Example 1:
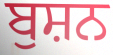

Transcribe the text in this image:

ਬੁਸ਼ਨ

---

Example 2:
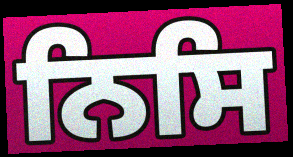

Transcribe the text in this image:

ਨਿਸਿ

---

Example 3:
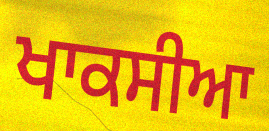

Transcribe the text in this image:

ਖਾਕਸੀਆ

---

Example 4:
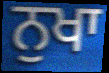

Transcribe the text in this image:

ਨੁਖਾ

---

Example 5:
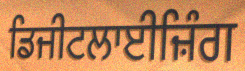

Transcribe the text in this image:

ਡਿਜੀਟਲਾਈਜ਼ਿੰਗ